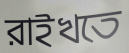
রাইখতে